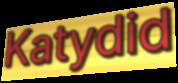
Katydid